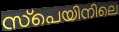
സ്‌പെയിനിലെ